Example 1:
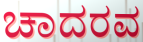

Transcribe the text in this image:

ಚಾದರವ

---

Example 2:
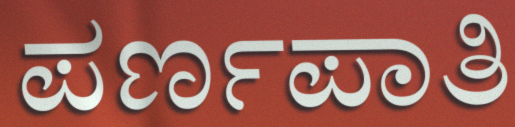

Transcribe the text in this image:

ಪರ್ಣಪಾತಿ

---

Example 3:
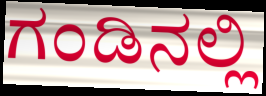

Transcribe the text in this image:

ಗಂಡಿನಲ್ಲಿ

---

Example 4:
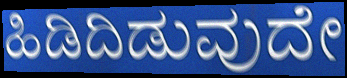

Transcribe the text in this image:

ಹಿಡಿದಿಡುವುದೇ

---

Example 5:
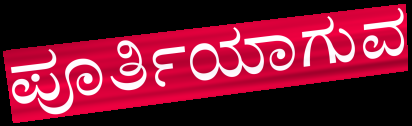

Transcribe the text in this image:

ಪೂರ್ತಿಯಾಗುವ